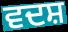
ਵਦਸ਼